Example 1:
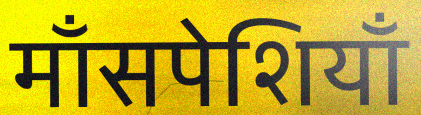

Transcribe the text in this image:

माँसपेशियाँ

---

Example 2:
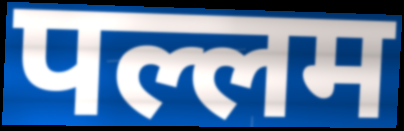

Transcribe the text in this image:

पल्लम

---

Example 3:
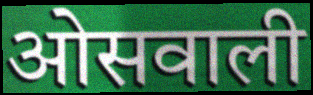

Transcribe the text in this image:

ओसवाली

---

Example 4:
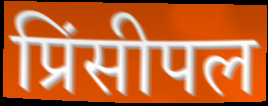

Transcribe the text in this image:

प्रिंसीपल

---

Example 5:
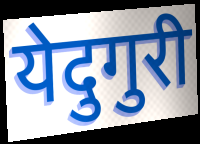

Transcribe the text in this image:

येदुगुरी